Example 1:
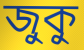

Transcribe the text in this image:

জুকু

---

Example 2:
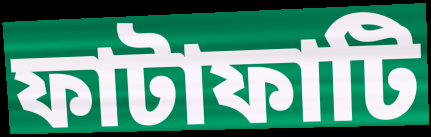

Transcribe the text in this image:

ফাটাফাটি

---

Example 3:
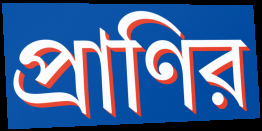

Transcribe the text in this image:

প্রাণির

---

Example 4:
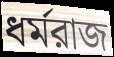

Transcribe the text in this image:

ধর্মরাজ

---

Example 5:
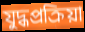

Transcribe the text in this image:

যুদ্ধপ্রক্রিয়া